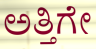
ಅತ್ತಿಗೇ